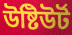
উষ্টিউৰ্ট